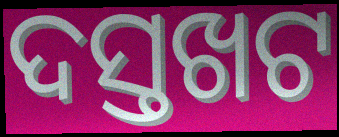
ଦସ୍ତଖଟ